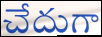
చేదుగా